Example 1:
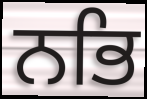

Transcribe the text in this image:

ਨਭਿ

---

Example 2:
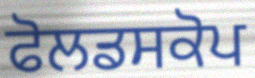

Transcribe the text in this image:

ਫੋਲਡਸਕੋਪ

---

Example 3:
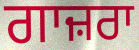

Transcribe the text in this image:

ਗਾਜ਼ਰਾ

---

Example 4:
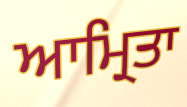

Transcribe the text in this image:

ਆਮ੍ਰਿਤਾ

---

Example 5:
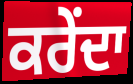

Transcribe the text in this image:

ਕਰੇਂਦਾ